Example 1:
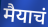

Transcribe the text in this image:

मैयाचं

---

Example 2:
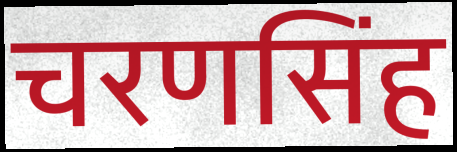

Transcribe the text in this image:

चरणसिंह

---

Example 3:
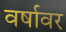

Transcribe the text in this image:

वर्षावर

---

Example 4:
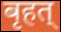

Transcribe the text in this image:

बृहत्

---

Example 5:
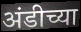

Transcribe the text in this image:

अंडीच्या